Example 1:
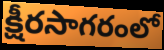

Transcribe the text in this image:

క్షీరసాగరంలో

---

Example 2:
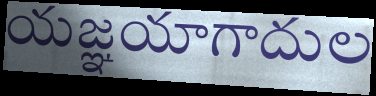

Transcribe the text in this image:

యజ్ఞయాగాదుల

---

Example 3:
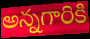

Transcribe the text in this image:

అన్నగారికి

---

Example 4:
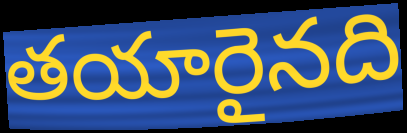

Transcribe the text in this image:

తయారైనది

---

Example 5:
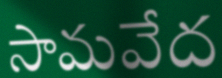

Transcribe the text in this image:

సామవేద